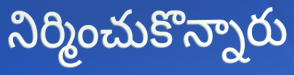
నిర్మించుకొన్నారు